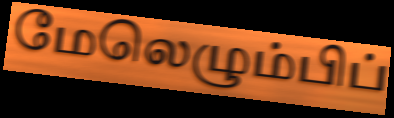
மேலெழும்பிப்